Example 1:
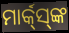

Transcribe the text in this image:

ମାର୍କ୍‌ସ୍‌ଙ୍କ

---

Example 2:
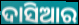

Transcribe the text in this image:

ଦାସିଆର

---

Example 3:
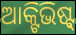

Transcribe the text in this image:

ଆକ୍ଟିଭିଷ୍ଟ୍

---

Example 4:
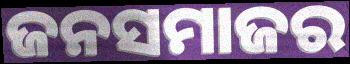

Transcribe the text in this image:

ଜନସମାଜର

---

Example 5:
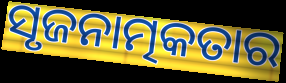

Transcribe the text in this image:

ସୃଜନାତ୍ମକତାର